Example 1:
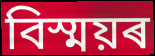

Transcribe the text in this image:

বিস্ময়ৰ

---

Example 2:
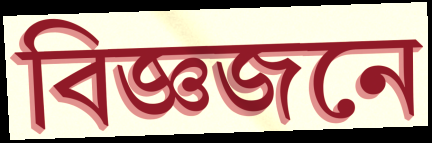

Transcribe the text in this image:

বিজ্ঞজনে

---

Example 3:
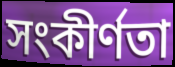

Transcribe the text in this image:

সংকীৰ্ণতা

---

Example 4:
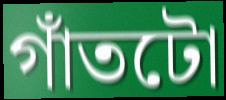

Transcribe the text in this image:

গাঁতটো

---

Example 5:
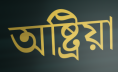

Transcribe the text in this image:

অষ্ট্ৰিয়া